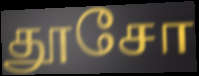
தூசோ